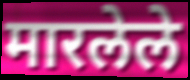
मारलेले